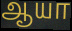
ஆயா